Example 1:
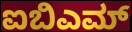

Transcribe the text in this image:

ಐಬಿಎಮ್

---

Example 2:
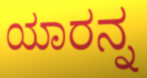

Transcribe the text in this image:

ಯಾರನ್ನ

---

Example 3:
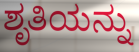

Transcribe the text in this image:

ಶೃತಿಯನ್ನು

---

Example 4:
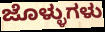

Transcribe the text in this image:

ಜೊಳ್ಳುಗಳು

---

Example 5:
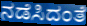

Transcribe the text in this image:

ನಡೆಸಿದಂತೆ